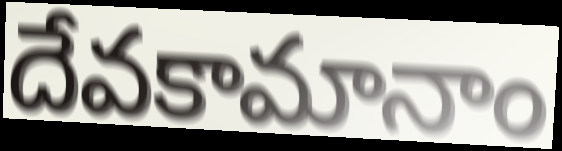
దేవకామానాం